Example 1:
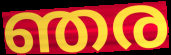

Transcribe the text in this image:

ഞര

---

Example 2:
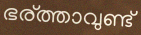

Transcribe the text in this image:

ഭര്ത്താവുണ്ട്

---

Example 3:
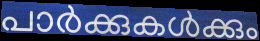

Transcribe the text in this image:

പാർക്കുകൾക്കും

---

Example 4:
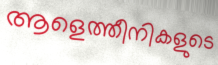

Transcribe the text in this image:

ആളെത്തീനികളുടെ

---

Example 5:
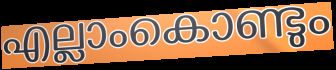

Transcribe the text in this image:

എല്ലാംകൊണ്ടും